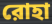
রোহা